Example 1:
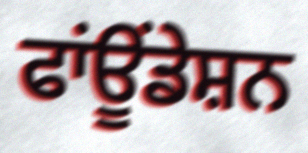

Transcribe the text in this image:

ਫਾਂਊਂਡੇਸ਼ਨ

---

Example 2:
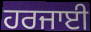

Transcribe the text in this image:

ਹਰਜਾਈ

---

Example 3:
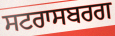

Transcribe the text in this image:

ਸਟਰਾਸਬਰਗ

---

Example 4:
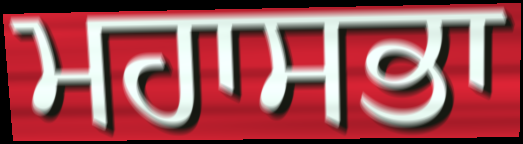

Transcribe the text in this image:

ਮਹਾਸਭਾ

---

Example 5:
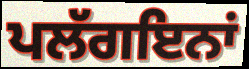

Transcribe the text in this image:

ਪਲੱਗਇਨਾਂ